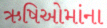
ઋષિઓમાંના